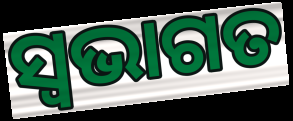
ସ୍ଵଭାଗତ